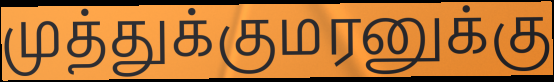
முத்துக்குமரனுக்கு